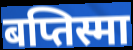
बप्तिस्मा